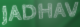
JADHAV